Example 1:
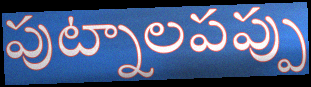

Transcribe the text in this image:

పుట్నాలపప్పు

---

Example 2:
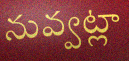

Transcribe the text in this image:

నువ్వట్లా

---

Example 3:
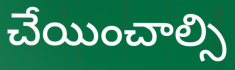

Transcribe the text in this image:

చేయించాల్సి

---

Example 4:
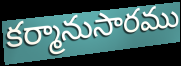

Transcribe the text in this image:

కర్మానుసారము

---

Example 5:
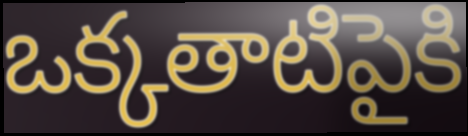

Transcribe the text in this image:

ఒక్కతాటిపైకి